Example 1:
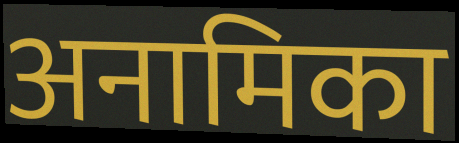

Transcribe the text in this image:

अनामिका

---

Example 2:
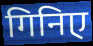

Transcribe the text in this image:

गिनिए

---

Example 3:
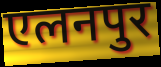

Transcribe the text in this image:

एलनपुर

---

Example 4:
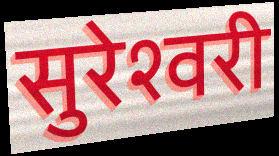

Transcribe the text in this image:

सुरेश्वरी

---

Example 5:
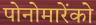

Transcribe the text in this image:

पोनोमारेंको